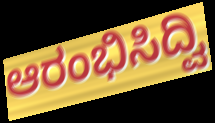
ಆರಂಭಿಸಿದ್ವಿ